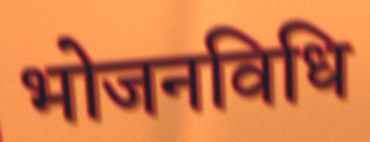
भोजनविधि